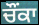
ਚੌੰਕਾ